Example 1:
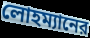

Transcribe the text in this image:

লোহম্যানের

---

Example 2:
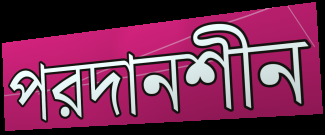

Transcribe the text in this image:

পরদানশীন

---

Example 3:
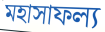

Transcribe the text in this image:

মহাসাফল্য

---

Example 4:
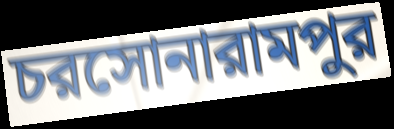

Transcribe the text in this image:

চরসোনারামপুর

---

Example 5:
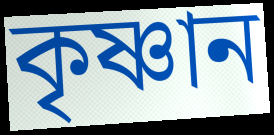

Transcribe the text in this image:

কৃষ্ণান